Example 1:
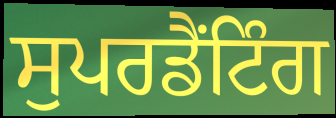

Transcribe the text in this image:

ਸੁਪਰਡੈਂਟਿੰਗ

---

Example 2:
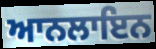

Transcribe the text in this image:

ਆਨਲਾਇਨ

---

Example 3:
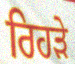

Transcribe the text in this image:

ਰਿਹੜੇ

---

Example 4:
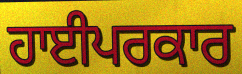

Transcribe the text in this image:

ਹਾਈਪਰਕਾਰ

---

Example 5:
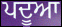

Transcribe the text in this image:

ਪਦੂਆ